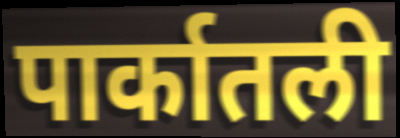
पार्कातली